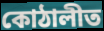
কোঠালীত